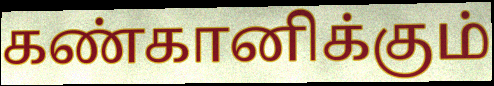
கண்கானிக்கும்